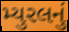
મ્યુરલનું